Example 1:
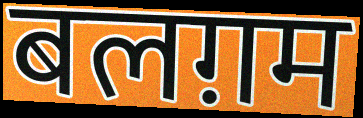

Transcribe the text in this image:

बलग़म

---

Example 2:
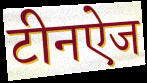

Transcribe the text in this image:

टीनऐज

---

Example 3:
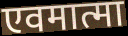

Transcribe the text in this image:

एवमात्मा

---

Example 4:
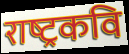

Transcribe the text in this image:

राष्ट्रकवि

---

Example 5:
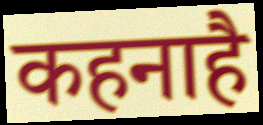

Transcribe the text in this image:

कहनाहै